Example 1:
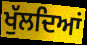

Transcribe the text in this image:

ਖੁੱਲਦਿਆਂ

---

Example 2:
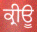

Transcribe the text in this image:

ਕ੍ਰੀਊ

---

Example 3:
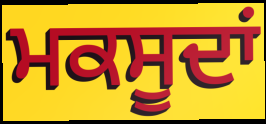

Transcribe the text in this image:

ਮਕਸੂਦਾਂ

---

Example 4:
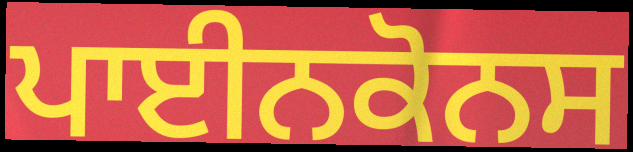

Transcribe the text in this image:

ਪਾਈਨਕੋਨਸ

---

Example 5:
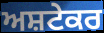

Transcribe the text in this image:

ਅਸ਼ਟੇਕਰ